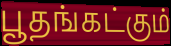
பூதங்கட்கும்